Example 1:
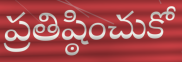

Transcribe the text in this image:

ప్రతిష్ఠించుకో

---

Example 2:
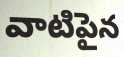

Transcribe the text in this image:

వాటిపైన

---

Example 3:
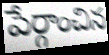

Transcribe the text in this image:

పేర్గాంచిన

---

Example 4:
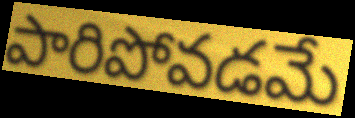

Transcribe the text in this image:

పారిపోవడమే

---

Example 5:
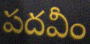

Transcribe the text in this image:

పదవీం